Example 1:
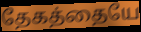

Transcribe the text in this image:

தேகத்தையே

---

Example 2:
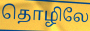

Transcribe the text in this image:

தொழிலே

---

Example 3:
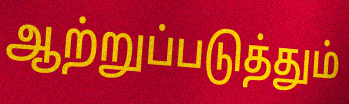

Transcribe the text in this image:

ஆற்றுப்படுத்தும்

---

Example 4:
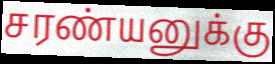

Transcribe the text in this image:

சரண்யனுக்கு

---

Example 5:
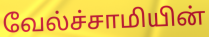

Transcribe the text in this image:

வேல்ச்சாமியின்